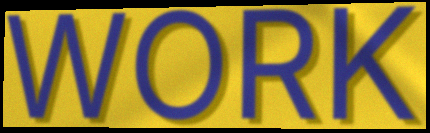
WORK